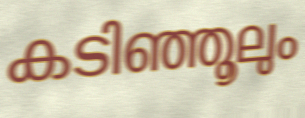
കടിഞ്ഞൂലും